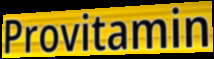
Provitamin